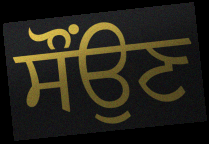
ਸੌਂਉਣ